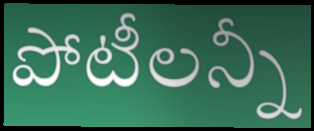
పోటీలన్నీ